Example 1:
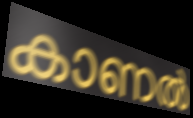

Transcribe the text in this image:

കാണൽ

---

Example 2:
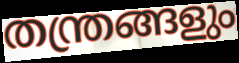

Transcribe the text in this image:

തന്ത്രങ്ങളും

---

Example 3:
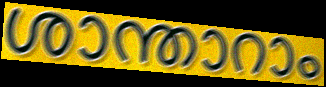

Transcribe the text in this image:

ശാന്താറാം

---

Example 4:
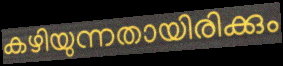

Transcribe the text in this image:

കഴിയുന്നതായിരിക്കും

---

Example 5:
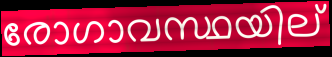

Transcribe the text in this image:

രോഗാവസ്ഥയില്